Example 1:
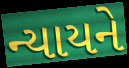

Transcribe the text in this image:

ન્યાયને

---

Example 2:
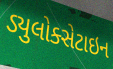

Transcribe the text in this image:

ડ્યુલોક્સેટાઇન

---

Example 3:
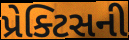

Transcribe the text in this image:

પ્રેક્ટિસની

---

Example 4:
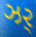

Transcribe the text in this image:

ઝર્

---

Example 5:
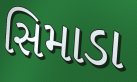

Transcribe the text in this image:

સિમાડા